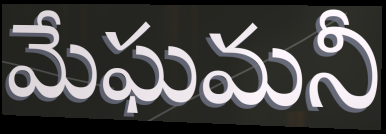
మేఘమనీ